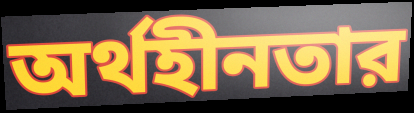
অর্থহীনতার